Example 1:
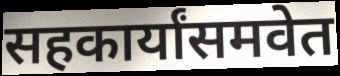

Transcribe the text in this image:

सहकार्यांसमवेत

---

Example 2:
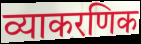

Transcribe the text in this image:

व्याकरणिक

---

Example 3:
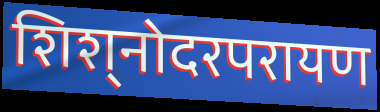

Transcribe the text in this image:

शिश्नोदरपरायण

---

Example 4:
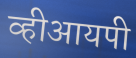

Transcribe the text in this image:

व्हीआयपी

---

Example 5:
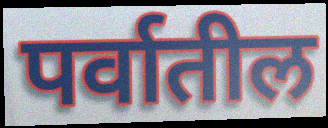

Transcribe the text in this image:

पर्वातील